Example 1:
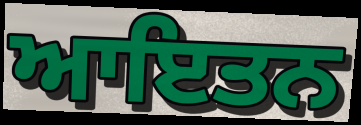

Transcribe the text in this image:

ਆਇਤਨ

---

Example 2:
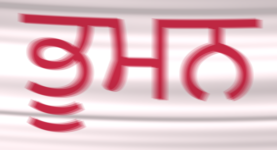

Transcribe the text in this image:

ਭੂਮਨ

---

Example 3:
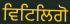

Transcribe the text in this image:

ਵਿਟਿਲਿਗੋ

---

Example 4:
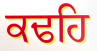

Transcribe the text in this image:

ਕਢਹਿ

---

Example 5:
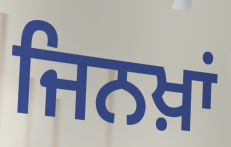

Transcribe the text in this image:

ਜਿਨਖ਼ਾਂ